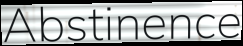
Abstinence